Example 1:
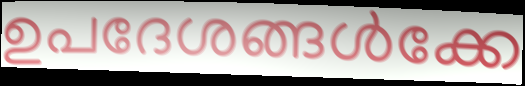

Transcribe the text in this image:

ഉപദേശങ്ങൾക്കേ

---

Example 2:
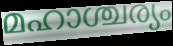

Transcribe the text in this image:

മഹാശ്ചര്യം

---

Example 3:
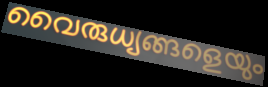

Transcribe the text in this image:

വൈരുധ്യങ്ങളെയും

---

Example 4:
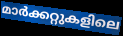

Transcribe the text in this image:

മാർക്കറ്റുകളിലെ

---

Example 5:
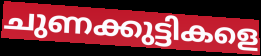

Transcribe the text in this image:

ചുണക്കുട്ടികളെ